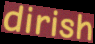
dirish